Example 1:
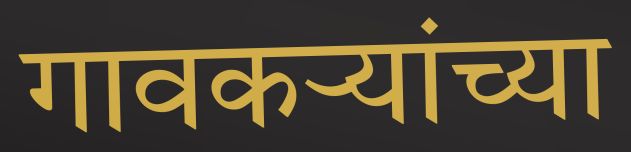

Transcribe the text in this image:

गावकऱ्यांच्या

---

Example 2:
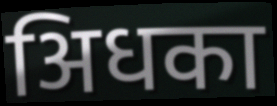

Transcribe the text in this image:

अिधका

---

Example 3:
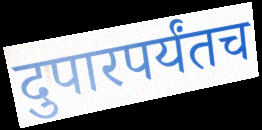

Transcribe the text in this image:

दुपारपर्यंतच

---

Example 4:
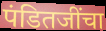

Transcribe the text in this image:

पंडितजींचा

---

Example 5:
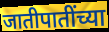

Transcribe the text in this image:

जातीपातींच्या